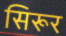
सिरूर